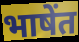
भाषेंत